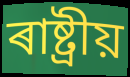
ৰাষ্ট্ৰীয়